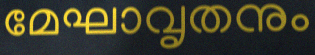
മേഘാവൃതനും